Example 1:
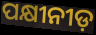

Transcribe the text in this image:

ପକ୍ଷୀନୀଡ଼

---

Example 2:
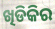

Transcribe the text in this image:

ଖିଡିକିର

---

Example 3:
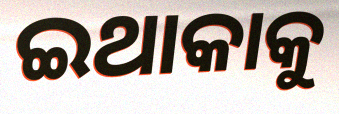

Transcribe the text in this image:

ଇଥାକାକୁ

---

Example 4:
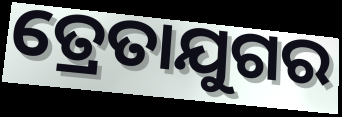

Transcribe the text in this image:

ତ୍ରେତାଯୁଗର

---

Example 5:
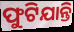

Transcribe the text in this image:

ଫୁଟିଯାନ୍ତି